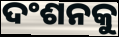
ଦଂଶନକୁ